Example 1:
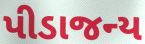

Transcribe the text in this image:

પીડાજન્ય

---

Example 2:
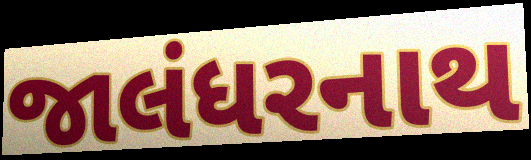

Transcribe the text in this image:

જાલંધરનાથ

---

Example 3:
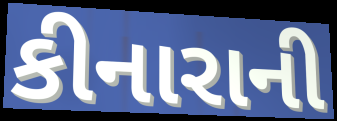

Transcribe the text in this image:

કીનારાની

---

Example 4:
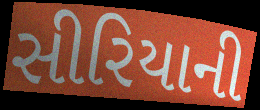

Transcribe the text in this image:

સીરિયાની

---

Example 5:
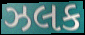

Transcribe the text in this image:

ઝલક